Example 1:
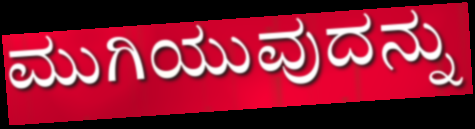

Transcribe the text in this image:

ಮುಗಿಯುವುದನ್ನು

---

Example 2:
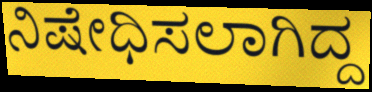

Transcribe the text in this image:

ನಿಷೇಧಿಸಲಾಗಿದ್ದ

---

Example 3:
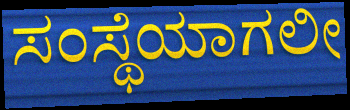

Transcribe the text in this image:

ಸಂಸ್ಥೆಯಾಗಲೀ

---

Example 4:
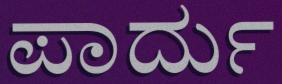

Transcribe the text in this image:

ಪಾರ್ದು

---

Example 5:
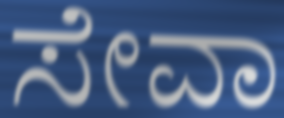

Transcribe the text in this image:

ಸೇವಾ